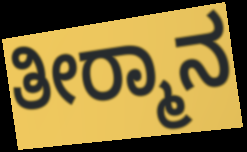
ತೀರ‍್ಮಾನ